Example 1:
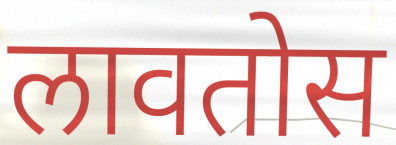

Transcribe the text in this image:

लावतोस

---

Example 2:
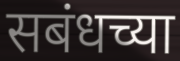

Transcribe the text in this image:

सबंधच्या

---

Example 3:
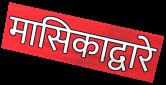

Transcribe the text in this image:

मासिकाद्वारे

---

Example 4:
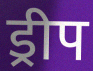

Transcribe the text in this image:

ड्रीप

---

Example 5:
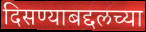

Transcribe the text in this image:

दिसण्याबद्दलच्या